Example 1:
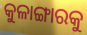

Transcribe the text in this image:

କୁଳାଙ୍ଗାରକୁ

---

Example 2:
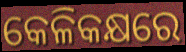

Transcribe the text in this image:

କେଳିକକ୍ଷରେ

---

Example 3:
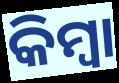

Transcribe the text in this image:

କିମ୍ଵା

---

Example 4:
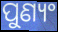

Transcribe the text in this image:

ପୁଣ୍ୟଂ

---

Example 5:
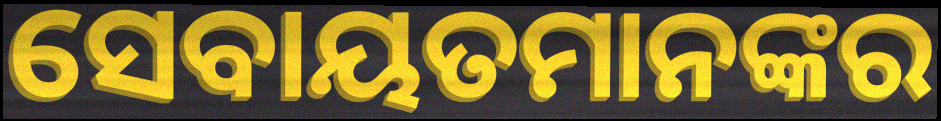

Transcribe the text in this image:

ସେବାୟତମାନଙ୍କର